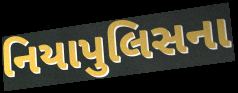
નિયાપુલિસના